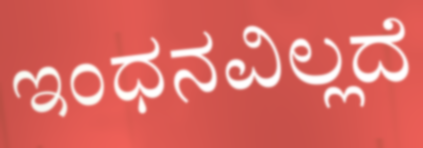
ಇಂಧನವಿಲ್ಲದೆ